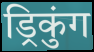
ड्रिकुंग